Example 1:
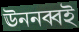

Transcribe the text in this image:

ঊননব্বই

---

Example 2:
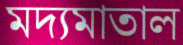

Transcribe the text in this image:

মদ্যমাতাল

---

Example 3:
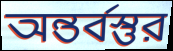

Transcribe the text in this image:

অন্তর্বস্তুর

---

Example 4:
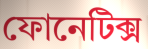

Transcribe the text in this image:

ফোনেটিক্স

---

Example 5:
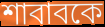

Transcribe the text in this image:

শাবাবকে